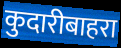
कुदारीबाहरा